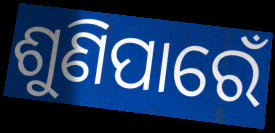
ଶୁଣିପାରେଁ